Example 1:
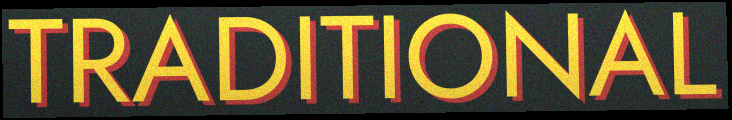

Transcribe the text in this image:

TRADITIONAL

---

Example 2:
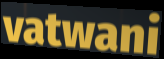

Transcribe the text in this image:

vatwani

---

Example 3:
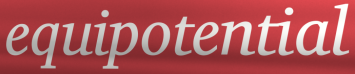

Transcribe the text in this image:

equipotential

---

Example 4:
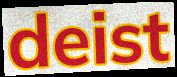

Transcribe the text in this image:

deist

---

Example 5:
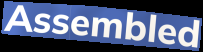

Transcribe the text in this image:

Assembled